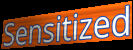
Sensitized